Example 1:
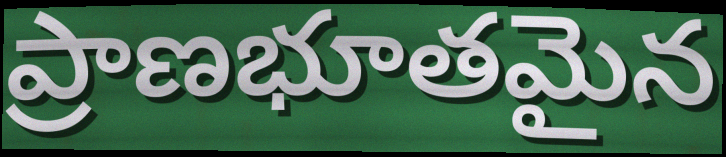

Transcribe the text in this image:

ప్రాణభూతమైన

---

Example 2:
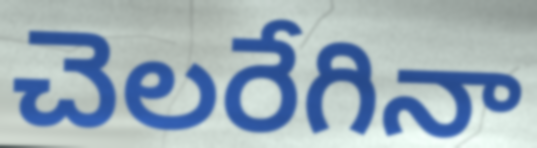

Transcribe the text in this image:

చెలరేగినా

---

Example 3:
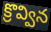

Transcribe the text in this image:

క్రొవ్విన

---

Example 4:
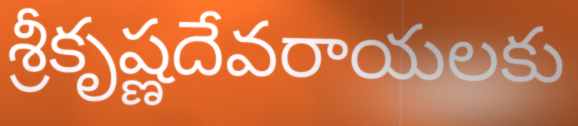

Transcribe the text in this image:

శ్రీకృష్ణదేవరాయలకు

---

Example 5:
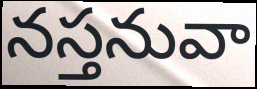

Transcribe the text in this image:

నస్తనువా